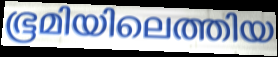
ഭൂമിയിലെത്തിയ